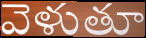
వెళుతూ